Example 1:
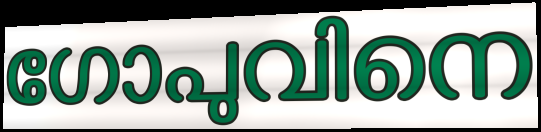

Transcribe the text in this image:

ഗോപുവിനെ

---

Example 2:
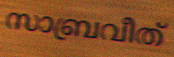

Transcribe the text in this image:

സാബ്രവീത്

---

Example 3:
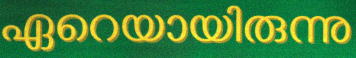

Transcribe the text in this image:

ഏറെയായിരുന്നു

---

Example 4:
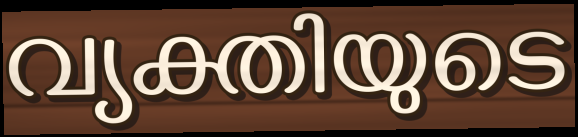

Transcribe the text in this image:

വ്യക്തിയുടെ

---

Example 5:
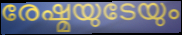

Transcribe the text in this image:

രേഷ്മയുടേയും